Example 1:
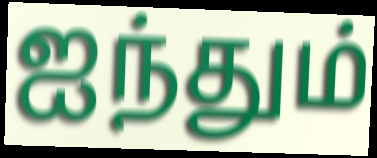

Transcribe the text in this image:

ஐந்தும்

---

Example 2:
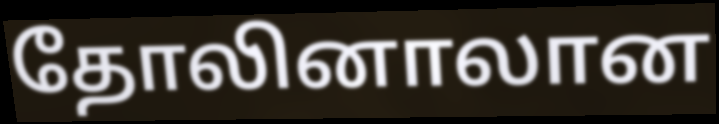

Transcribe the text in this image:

தோலினாலான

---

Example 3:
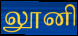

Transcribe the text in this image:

லூனி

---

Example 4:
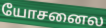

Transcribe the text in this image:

யோசனைல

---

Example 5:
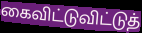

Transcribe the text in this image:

கைவிட்டுவிட்டுத்